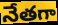
నేతగా